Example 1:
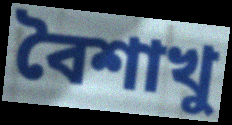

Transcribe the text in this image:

বৈশাখু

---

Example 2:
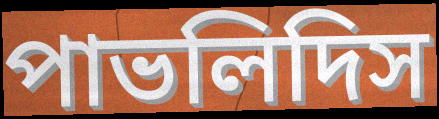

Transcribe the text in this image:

পাভলিদিস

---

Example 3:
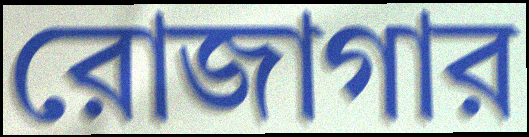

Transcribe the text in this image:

রোজাগার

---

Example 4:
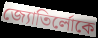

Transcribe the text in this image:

জ্যোতির্লোকে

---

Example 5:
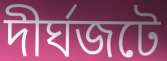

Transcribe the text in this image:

দীর্ঘজটে